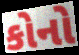
કોનો